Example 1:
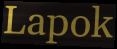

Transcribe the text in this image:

Lapok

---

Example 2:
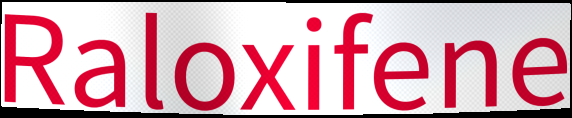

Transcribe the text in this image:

Raloxifene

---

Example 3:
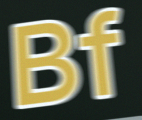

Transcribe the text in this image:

Bf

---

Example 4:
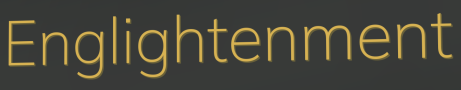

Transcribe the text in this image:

Englightenment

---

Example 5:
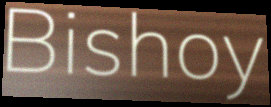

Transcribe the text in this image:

Bishoy